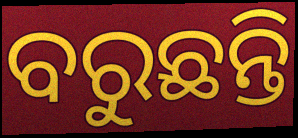
ବରୁଛନ୍ତି